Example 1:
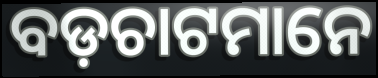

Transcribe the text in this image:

ବଡ଼ଚାଟମାନେ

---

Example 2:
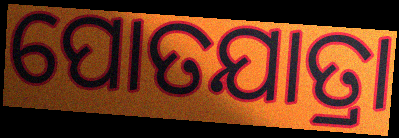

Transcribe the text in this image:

ପୋତଯାତ୍ରା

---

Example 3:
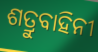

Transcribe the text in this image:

ଶତ୍ରୁବାହିନୀ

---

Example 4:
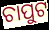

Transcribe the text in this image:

ଚାପୁଟ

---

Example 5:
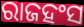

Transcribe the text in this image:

ରାଜହଂସ